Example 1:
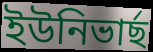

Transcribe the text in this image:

ইউনিভাৰ্ছ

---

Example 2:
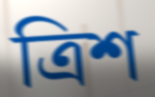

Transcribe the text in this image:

ত্ৰিশ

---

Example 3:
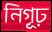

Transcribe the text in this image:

নিগূঢ়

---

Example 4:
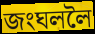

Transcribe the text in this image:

জংঘললৈ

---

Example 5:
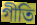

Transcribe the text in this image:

গীতি